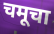
चमूचा